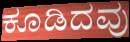
ಕೂಡಿದವು